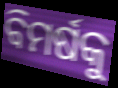
ବିମର୍ଷକୁ